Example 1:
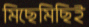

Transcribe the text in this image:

মিছেমিছিই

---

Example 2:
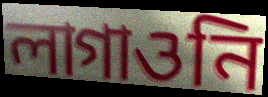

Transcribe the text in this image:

লাগাওনি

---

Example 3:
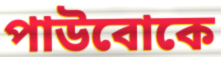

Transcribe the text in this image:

পাউবোকে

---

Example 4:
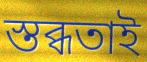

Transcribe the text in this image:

স্তব্ধতাই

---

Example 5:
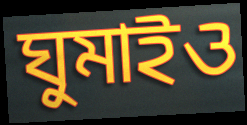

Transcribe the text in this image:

ঘুমাইও